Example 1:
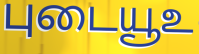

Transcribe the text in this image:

புடையூஉ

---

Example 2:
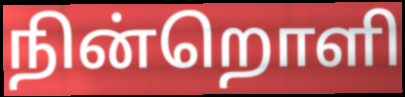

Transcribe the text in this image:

நின்றொளி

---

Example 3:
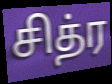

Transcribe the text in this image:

சித்ர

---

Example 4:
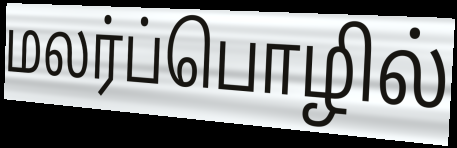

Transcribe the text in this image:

மலர்ப்பொழில்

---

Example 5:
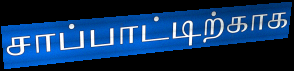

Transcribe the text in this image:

சாப்பாட்டிற்காக